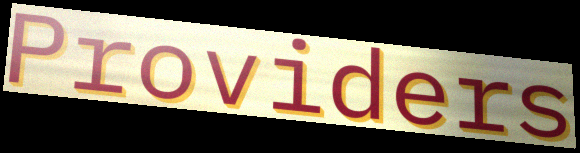
Providers